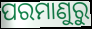
ପରମାଣୁରୁ